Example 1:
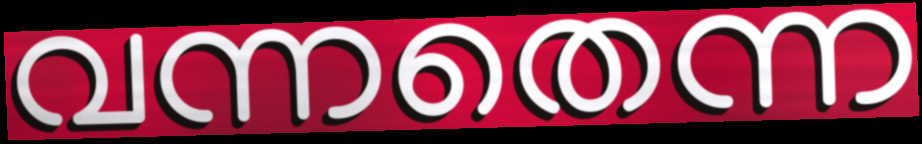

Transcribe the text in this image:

വന്നതെന്ന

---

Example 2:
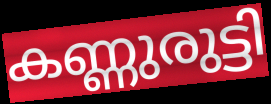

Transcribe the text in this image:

കണ്ണുരുട്ടി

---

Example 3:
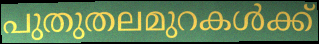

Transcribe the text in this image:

പുതുതലമുറകൾക്ക്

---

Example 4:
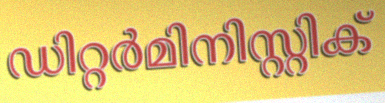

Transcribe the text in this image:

ഡിറ്റർമിനിസ്റ്റിക്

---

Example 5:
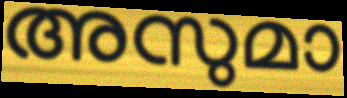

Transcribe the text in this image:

അസുമാ